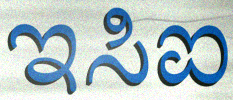
ಇಸಿಐ